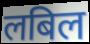
लबिल